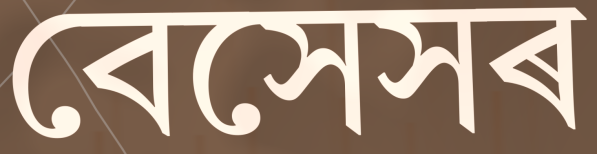
বেসেসৰ